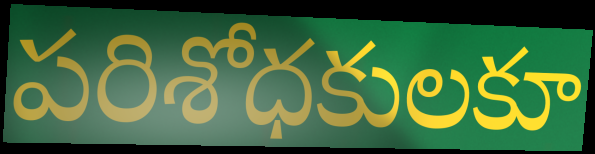
పరిశోధకులకూ